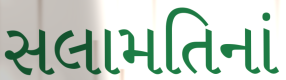
સલામતિનાં